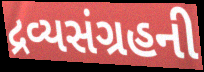
દ્રવ્યસંગ્રહની